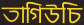
তাগিউচি